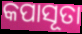
କପାସୂତା